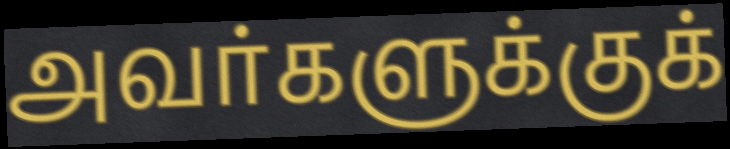
அவர்களுக்குக்